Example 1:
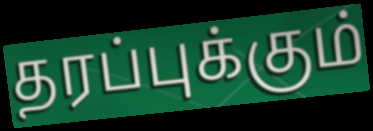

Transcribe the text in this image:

தரப்புக்கும்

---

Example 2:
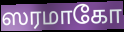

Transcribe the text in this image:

ஸரமாகோ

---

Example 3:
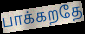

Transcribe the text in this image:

பாக்கறதே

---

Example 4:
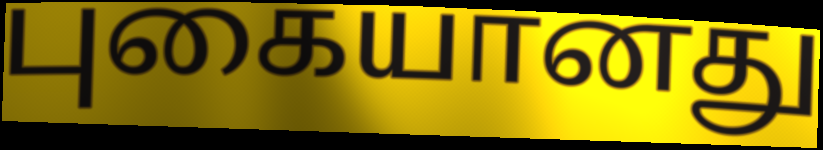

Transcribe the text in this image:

புகையானது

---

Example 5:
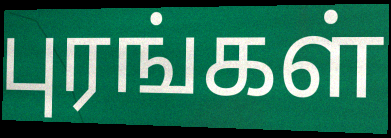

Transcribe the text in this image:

புரங்கள்